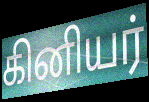
கினியர்